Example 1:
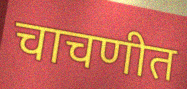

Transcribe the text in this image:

चाचणीत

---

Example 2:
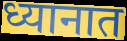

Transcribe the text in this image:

ध्यानात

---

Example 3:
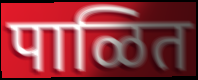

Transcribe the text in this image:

पाळित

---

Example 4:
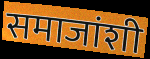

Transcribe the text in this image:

समाजांशी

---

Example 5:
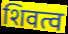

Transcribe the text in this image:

शिवत्व